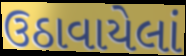
ઉઠાવાયેલાં